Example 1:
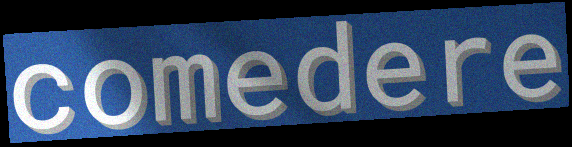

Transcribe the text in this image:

comedere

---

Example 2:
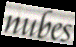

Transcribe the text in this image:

nubes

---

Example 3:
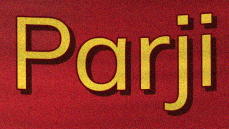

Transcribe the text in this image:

Parji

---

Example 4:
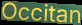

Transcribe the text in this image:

Occitan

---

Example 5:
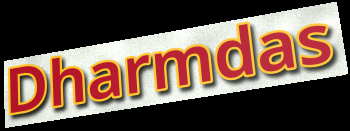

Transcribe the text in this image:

Dharmdas